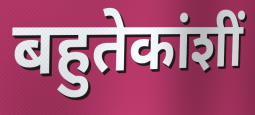
बहुतेकांशीं